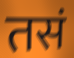
तसं